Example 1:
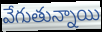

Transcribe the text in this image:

వేగుతున్నాయి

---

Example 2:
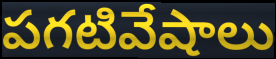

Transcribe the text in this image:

పగటివేషాలు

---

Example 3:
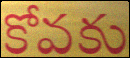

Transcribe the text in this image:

కోవకు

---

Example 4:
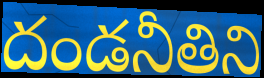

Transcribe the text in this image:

దండనీతిని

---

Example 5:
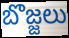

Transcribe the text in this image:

బొజ్జలు